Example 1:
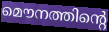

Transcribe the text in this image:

മൌനത്തിന്റെ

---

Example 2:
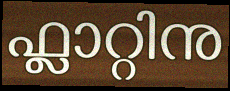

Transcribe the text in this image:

ഫ്ലാറ്റിനു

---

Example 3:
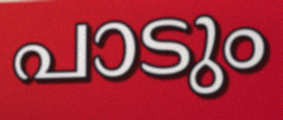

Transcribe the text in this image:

പാടും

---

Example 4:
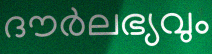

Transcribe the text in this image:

ദൗർലഭ്യവും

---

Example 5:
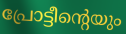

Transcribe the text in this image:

പ്രോട്ടീന്റെയും